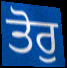
ਤੋਰੁ